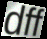
dff